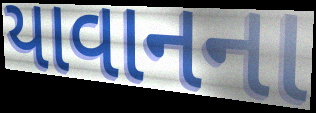
યાવાનના